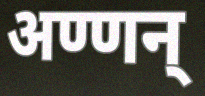
अण्णन्